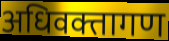
अधिवक्तागण